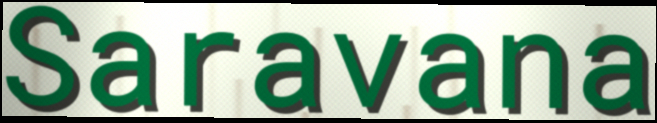
Saravana